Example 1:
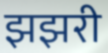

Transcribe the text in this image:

झझरी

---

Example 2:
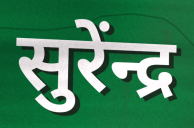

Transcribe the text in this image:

सुरेंन्द्र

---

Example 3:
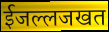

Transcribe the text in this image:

ईजल्लजखत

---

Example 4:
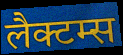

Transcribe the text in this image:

लैक्टम्स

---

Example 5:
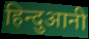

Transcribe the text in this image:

हिन्दुआनी